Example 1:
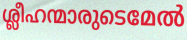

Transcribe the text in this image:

ശ്ലീഹന്മാരുടെമേൽ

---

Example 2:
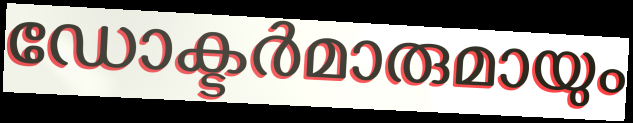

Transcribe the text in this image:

ഡോക്ടർമാരുമായും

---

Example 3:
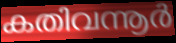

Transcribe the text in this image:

കതിവന്നൂർ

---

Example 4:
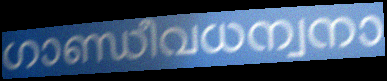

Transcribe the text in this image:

ഗാണ്ഡീവധന്വനാ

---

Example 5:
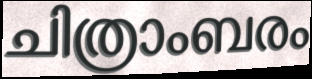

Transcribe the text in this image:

ചിത്രാംബരം